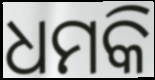
ଧମକି